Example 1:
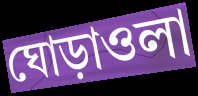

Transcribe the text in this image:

ঘোড়াওলা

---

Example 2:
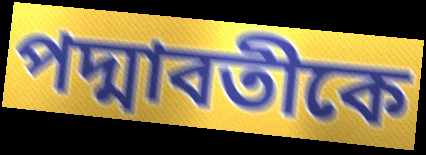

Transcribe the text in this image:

পদ্মাবতীকে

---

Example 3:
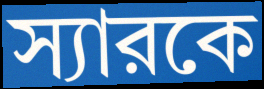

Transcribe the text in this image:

স্যারকে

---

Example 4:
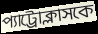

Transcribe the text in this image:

প্যাট্রোক্লাসকে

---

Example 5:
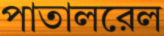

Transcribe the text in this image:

পাতালরেল